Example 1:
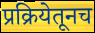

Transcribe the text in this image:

प्रक्रियेतूनच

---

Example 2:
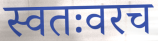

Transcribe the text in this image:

स्वतःवरच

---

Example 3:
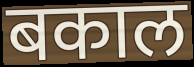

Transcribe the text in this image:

बकाल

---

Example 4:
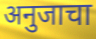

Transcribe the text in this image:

अनुजाचा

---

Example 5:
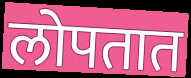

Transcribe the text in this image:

लोपतात